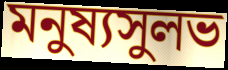
মনুষ্যসুলভ